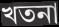
খতনা